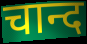
चान्द